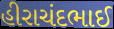
હીરાચંદભાઈ